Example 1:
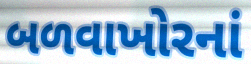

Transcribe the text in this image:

બળવાખોરનાં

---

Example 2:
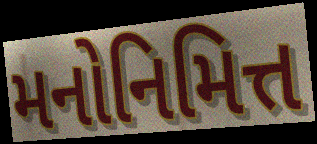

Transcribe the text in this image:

મનોનિમિત્ત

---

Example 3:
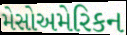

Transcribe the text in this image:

મેસોઅમેરિકન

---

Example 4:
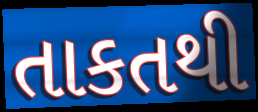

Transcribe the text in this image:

તાકતથી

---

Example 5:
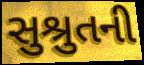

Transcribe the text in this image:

સુશ્રુતની